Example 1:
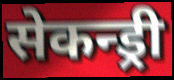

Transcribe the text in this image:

सेकन्ड्री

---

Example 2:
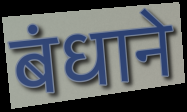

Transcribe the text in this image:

बंधाने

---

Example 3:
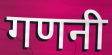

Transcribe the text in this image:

गणनी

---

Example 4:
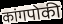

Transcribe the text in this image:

कांगपोकी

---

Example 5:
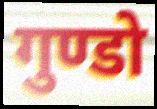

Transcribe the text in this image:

गुण्डो